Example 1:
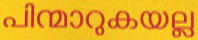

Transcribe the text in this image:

പിന്മാറുകയല്ല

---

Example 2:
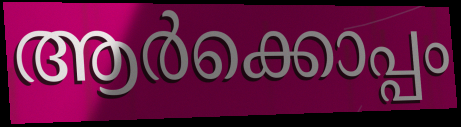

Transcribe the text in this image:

ആർക്കൊപ്പം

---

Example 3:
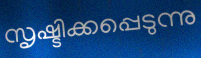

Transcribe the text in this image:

സൃഷ്ടിക്കപ്പെടുന്നു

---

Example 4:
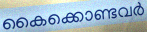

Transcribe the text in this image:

കൈക്കൊണ്ടവർ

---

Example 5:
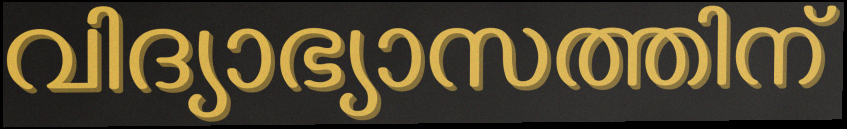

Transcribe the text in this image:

വിദ്യാഭ്യാസത്തിന്